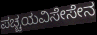
ಪಚ್ಚಯವಿಸೇಸೇನ